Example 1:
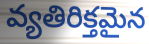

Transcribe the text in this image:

వ్యతిరిక్తమైన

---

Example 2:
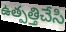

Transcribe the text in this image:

ఉత్పత్తిచేసి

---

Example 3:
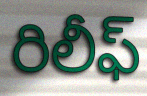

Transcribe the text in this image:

రిలీఫ్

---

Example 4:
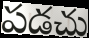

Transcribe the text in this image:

పడచు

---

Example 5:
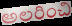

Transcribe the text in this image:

అలరించి